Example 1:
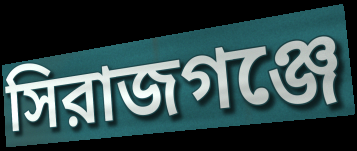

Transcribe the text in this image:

সিরাজগঞ্জে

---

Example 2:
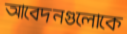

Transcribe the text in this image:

আবেদনগুলোকে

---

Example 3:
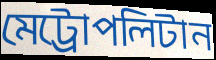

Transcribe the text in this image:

মেট্রোপলিটান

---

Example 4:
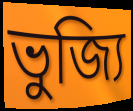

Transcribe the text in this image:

ভুজ্যি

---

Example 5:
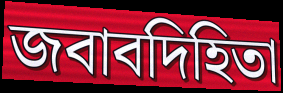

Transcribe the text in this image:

জবাবদিহিতা